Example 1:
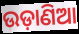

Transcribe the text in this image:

ଉଡ଼ାଣିଆ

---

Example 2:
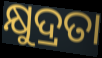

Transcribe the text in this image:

କ୍ଷୁଦ୍ରତା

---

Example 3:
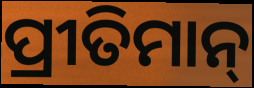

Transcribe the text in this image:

ପ୍ରୀତିମାନ୍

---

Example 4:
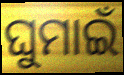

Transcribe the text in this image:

ଘୁମାଇଁ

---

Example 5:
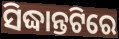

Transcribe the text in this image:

ସିଦ୍ଧାନ୍ତଟିରେ